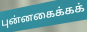
புன்னகைக்கக்